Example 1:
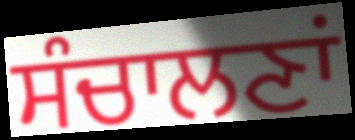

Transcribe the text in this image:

ਸੰਚਾਲਣਾਂ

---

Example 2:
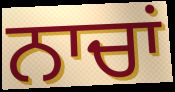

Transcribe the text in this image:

ਨਾਚਾਂ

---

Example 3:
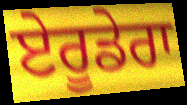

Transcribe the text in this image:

ਏਰੂਡੇਰਾ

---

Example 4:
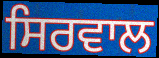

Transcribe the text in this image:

ਸਿਰਵਾਲ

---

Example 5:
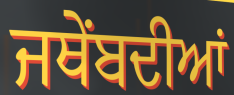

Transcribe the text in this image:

ਜਥੇਂਬਦੀਆਂ